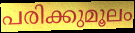
പരിക്കുമൂലം